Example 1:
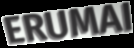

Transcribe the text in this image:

ERUMAI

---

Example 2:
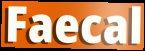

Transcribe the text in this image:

Faecal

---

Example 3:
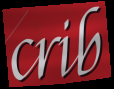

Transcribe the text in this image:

crib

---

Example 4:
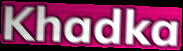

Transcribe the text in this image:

Khadka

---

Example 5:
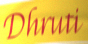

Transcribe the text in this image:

Dhruti